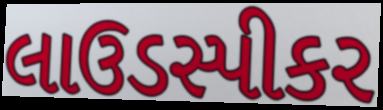
લાઉડસ્પીકર